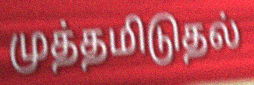
முத்தமிடுதல்